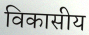
विकासीय